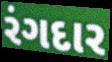
રંગદાર